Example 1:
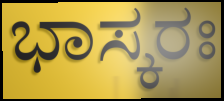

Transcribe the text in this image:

ಭಾಸ್ಕರಃ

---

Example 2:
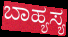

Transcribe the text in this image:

ಬಾಹ್ಯಸ್ಯ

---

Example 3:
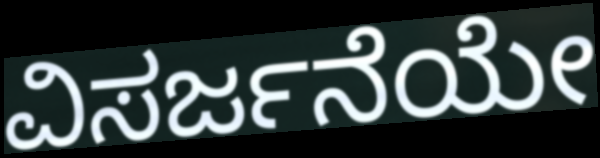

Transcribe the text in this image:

ವಿಸರ್ಜನೆಯೇ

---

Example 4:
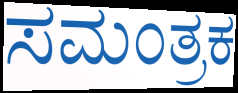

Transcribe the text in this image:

ಸಮಂತ್ರಕ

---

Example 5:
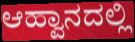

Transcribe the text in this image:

ಆಹ್ವಾನದಲ್ಲಿ